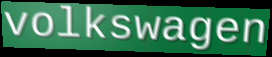
volkswagen